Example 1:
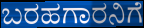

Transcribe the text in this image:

ಬರಹಗಾರನಿಗೆ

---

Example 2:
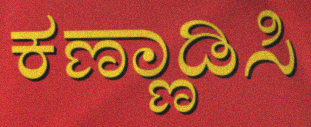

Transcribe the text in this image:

ಕಣ್ಣಾಡಿಸಿ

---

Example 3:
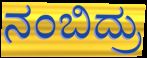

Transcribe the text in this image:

ನಂಬಿದ್ರು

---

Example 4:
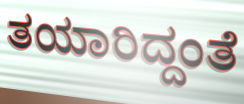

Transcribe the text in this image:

ತಯಾರಿದ್ದಂತೆ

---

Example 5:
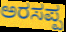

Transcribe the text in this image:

ಅರಸಪ್ಪ